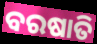
ବରଷାତି